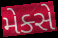
મેક્સે